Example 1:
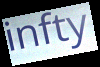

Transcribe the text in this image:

infty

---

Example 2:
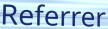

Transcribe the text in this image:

Referrer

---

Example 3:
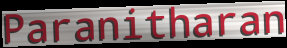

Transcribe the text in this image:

Paranitharan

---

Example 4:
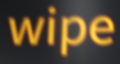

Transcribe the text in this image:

wipe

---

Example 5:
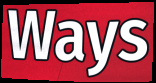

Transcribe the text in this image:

Ways